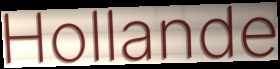
Hollande